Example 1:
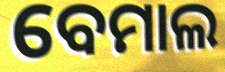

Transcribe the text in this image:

ବେମାଲ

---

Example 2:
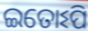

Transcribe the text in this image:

ଇତୋଽପି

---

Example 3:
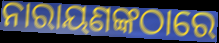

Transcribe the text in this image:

ନାରାୟଣଙ୍କଠାରେ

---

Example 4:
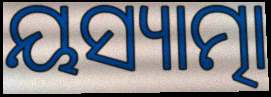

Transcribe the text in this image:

ୟସ୍ୟାତ୍ମା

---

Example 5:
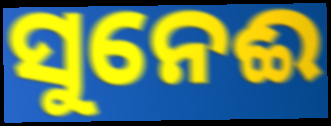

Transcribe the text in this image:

ସୁନେଈ